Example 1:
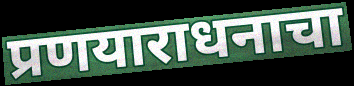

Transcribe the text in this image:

प्रणयाराधनाचा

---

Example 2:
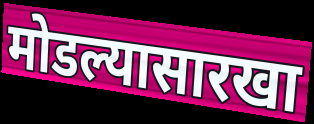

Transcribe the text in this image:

मोडल्यासारखा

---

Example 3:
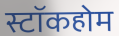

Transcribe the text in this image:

स्टॉकहोम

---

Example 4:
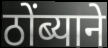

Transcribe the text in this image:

ठोंब्याने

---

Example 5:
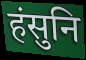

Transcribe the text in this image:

हंसुनि